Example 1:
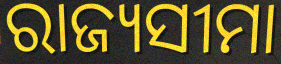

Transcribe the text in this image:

ରାଜ୍ୟସୀମା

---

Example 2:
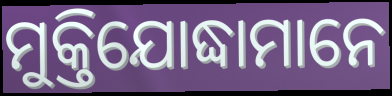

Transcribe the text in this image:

ମୁକ୍ତିଯୋଦ୍ଧାମାନେ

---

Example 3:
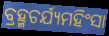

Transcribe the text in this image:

ବ୍ରହ୍ମଚର୍ଯ୍ୟମହିଂସା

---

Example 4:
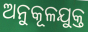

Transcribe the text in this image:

ଅନୁକୂଳଯୁକ୍ତ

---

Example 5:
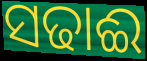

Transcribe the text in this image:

ସଢାଈ